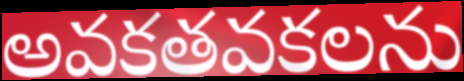
అవకతవకలను